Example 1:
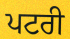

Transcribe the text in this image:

ਪਟਰੀ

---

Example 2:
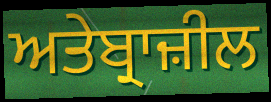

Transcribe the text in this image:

ਅਤੇਬ੍ਰਾਜ਼ੀਲ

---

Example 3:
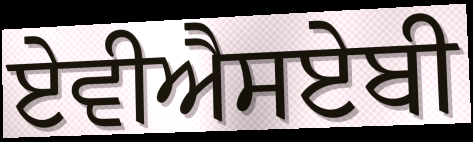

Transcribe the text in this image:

ਏਵੀਐਸਏਬੀ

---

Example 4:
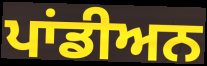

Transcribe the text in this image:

ਪਾਂਡੀਅਨ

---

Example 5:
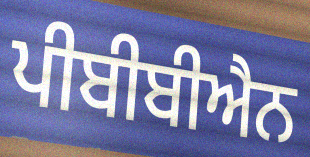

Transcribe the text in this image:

ਪੀਬੀਬੀਐਨ